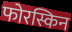
फोरस्किन